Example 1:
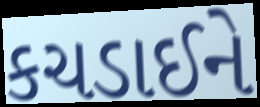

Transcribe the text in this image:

કચડાઈને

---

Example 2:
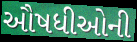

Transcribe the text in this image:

ઔષધીઓની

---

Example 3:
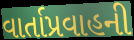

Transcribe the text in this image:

વાર્તાપ્રવાહની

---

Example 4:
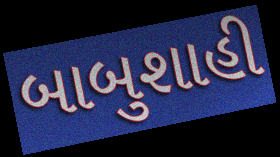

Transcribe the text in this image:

બાબુશાહી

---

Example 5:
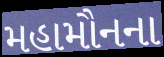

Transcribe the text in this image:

મહામૌનના